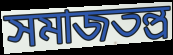
সমাজতন্ত্ৰ